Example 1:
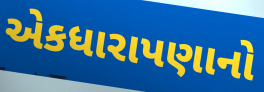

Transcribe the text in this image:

એકધારાપણાનો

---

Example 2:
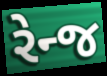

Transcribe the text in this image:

રેન્જ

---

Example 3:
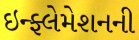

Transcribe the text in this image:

ઇન્ફ્લેમેશનની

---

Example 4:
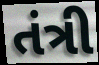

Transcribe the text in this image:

તંત્રી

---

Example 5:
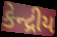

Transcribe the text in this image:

કેન્દ્રીય